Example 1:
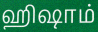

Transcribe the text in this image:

ஹிஷாம்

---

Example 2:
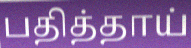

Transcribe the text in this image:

பதித்தாய்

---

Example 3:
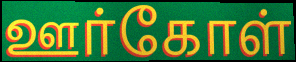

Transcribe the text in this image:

ஊர்கோள்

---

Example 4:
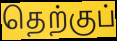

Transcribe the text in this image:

தெற்குப்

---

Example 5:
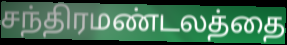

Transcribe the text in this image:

சந்திரமண்டலத்தை